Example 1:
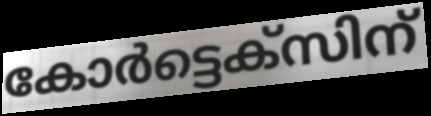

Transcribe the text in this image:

കോർട്ടെക്സിന്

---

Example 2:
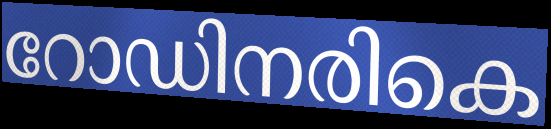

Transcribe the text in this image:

റോഡിനരികെ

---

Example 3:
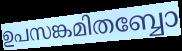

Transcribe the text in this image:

ഉപസങ്കമിതബ്ബോ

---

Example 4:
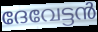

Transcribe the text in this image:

ദേവേട്ടൻ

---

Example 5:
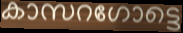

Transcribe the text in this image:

കാസറഗോട്ടെ